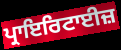
ਪ੍ਰਾਇਰਿਟਾਈਜ਼